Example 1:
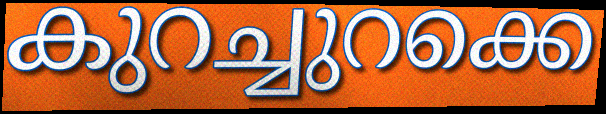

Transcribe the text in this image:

കുറച്ചുറക്കെ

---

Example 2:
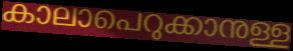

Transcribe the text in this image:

കാലാപെറുക്കാനുള്ള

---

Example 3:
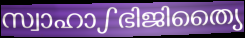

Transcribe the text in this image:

സ്വാഹാഽഭിജിത്യൈ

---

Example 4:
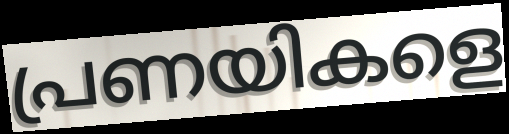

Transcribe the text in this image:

പ്രണയികളെ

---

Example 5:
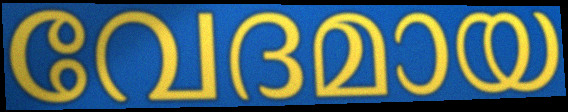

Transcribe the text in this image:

വേദമായ